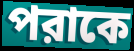
পরাকে